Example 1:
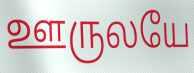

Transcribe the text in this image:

ஊருலயே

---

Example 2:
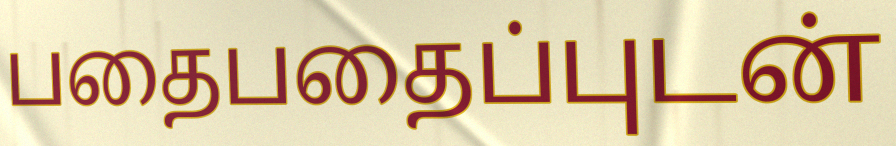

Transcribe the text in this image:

பதைபதைப்புடன்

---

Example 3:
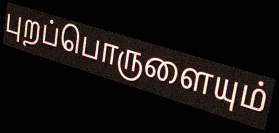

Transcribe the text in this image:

புறப்பொருளையும்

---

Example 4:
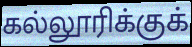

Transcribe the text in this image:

கல்லூரிக்குக்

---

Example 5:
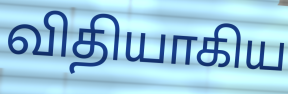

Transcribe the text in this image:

விதியாகிய